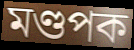
মণ্ডপক